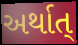
અર્થાત્